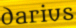
darius